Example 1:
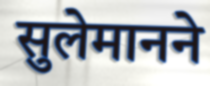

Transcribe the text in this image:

सुलेमानने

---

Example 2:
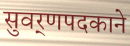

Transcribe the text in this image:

सुवर्णपदकाने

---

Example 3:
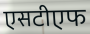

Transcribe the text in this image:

एसटीएफ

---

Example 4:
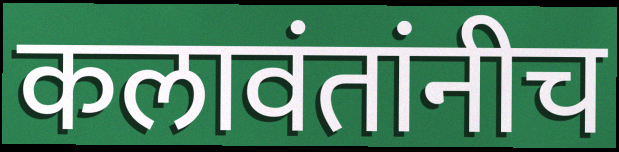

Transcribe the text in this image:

कलावंतांनीच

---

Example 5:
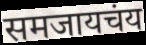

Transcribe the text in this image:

समजायचंय